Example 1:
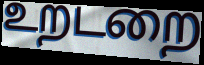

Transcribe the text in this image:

உறடறை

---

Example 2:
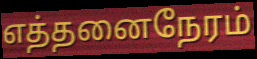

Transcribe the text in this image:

எத்தனைநேரம்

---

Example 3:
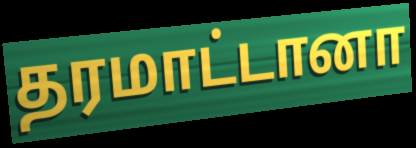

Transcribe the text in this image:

தரமாட்டானா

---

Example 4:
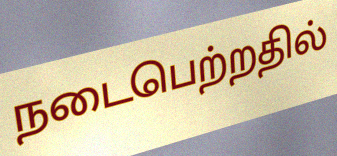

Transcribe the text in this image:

நடைபெற்றதில்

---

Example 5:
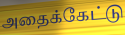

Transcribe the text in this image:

அதைக்கேட்டு